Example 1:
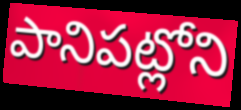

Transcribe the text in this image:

పానిపట్లోని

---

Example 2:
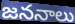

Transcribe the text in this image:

జననాలు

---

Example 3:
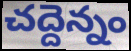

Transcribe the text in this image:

చద్దెన్నం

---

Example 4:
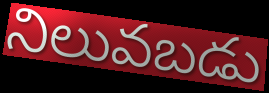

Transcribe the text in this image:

నిలువబడు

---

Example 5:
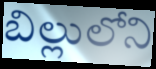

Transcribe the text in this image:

బిల్లులోని